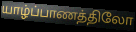
யாழ்ப்பாணத்திலோ